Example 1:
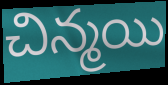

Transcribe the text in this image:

చిన్మయి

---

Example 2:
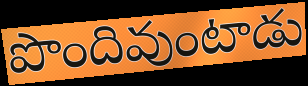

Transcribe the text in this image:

పొందివుంటాడు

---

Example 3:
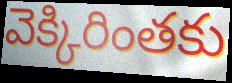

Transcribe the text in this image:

వెక్కిరింతకు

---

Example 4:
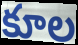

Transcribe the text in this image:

కూల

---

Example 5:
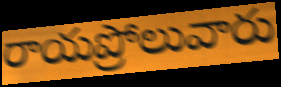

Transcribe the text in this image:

రాయప్రోలువారు